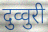
दुव्वुरी